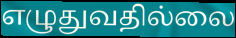
எழுதுவதில்லை